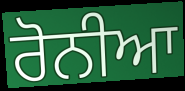
ਰੋਨੀਆ